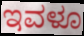
ಇವಳೂ